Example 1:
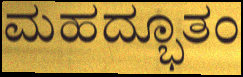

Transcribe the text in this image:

ಮಹದ್ಭೂತಂ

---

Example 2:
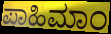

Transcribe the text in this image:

ಪಾಹಿಮಾಂ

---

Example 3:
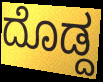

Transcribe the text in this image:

ದೊಡ್ದ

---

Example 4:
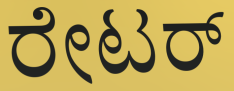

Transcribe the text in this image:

ರೇಟರ್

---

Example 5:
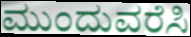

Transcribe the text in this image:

ಮುಂದುವರೆಸಿ